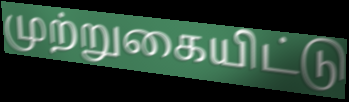
முற்றுகையிட்டு